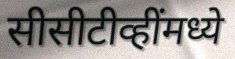
सीसीटीव्हींमध्ये